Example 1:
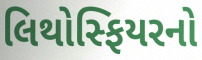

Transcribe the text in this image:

લિથોસ્ફિયરનો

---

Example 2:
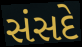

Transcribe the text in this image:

સંસદે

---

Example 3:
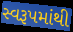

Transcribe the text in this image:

સ્વરૂપમાંથી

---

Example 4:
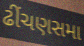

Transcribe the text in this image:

ઢીંચણસમા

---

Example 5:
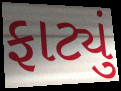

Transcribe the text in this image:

ફાટ્યું